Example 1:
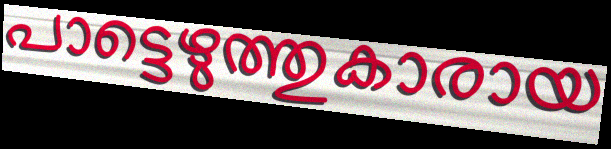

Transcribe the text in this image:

പാട്ടെഴുത്തുകാരായ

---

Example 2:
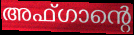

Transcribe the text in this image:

അഫ്ഗാന്റെ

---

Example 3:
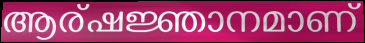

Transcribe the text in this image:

ആര്ഷജ്ഞാനമാണ്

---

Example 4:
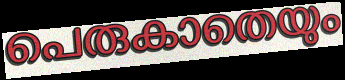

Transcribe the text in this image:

പെരുകാതെയും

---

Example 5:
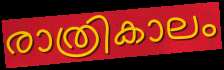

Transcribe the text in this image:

രാത്രികാലം